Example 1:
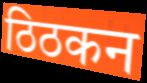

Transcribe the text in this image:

ठिठकन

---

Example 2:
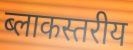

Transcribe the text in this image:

ब्लाकस्तरीय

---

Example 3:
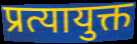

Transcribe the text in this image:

प्रत्यायुक्त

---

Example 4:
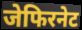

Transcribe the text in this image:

जेफिरनेट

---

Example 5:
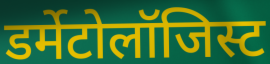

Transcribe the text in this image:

डर्मेटोलॉजिस्ट